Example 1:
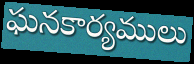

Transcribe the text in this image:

ఘనకార్యములు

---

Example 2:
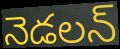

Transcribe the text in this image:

నెడలన్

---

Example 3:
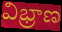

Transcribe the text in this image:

విభ్రాణ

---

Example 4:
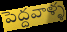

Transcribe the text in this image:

పెద్దవాళ్ళ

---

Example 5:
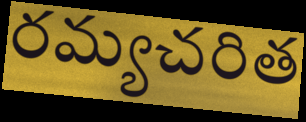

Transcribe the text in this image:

రమ్యచరిత